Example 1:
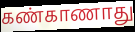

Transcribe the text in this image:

கண்காணாது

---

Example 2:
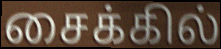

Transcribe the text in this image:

சைக்கில்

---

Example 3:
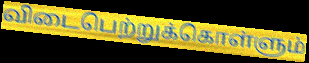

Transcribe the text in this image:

விடைபெற்றுக்கொள்ளும்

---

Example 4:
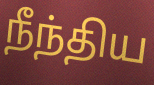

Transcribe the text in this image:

நீந்திய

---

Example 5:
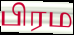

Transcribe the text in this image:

பிரம